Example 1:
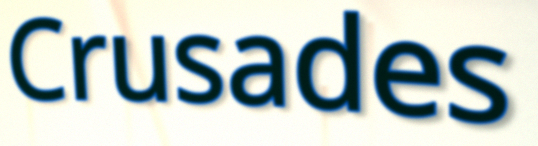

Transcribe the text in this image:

Crusades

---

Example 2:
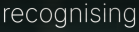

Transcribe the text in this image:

recognising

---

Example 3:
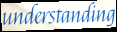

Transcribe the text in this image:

understanding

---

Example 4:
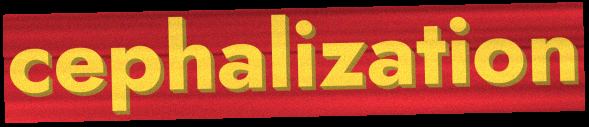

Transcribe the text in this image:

cephalization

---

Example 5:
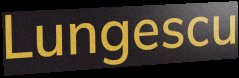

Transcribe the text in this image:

Lungescu